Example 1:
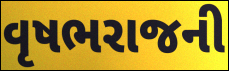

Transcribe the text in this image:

વૃષભરાજની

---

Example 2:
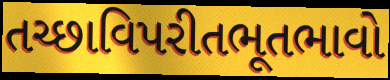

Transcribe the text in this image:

તચ્છાવિપરીતભૂતભાવો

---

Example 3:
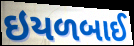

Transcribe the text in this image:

ઇયળબાઈ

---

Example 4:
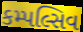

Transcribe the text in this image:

કમ્પલ્સિવ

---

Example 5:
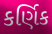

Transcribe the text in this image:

કર્ણિક